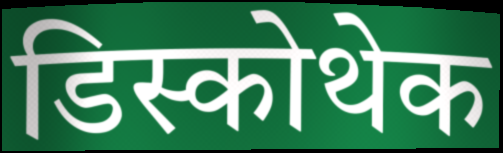
डिस्कोथेक